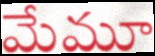
మేమూ